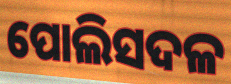
ପୋଲିସଦଳ